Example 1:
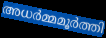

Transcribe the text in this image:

അധർമ്മമൂർത്തി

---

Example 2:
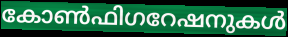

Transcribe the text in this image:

കോൺഫിഗറേഷനുകൾ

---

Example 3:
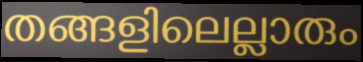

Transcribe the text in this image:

തങ്ങളിലെല്ലാരും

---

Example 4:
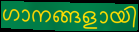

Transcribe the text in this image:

ഗാനങ്ങളായി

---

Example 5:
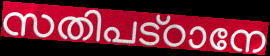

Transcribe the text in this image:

സതിപട്ഠാനേ